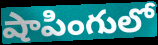
షాపింగులో